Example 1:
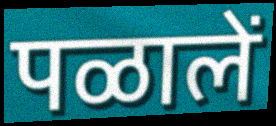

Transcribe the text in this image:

पळालें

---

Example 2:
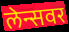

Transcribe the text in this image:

लेन्सवर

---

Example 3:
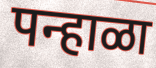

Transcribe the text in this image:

पन्हाळा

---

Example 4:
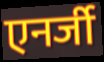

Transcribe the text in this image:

एनर्जी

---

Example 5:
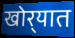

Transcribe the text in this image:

खोर्‍यात